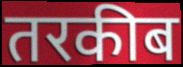
तरकीब